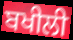
ਬਖੀਲੀ